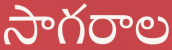
సాగరాల